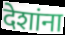
देशांना